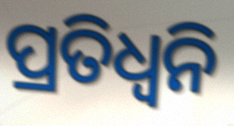
ପ୍ରତିଧ୍ବନି